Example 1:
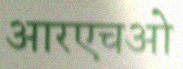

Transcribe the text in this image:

आरएचओ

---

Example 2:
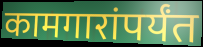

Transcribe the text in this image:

कामगारांपर्यंत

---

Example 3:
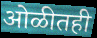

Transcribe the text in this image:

ओळीतही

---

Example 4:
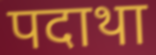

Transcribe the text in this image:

पदाथा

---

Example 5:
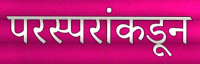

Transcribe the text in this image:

परस्परांकडून